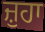
ਜ਼ੁਹਾ